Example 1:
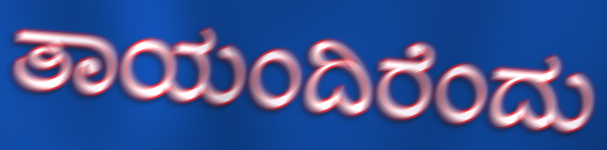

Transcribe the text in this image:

ತಾಯಂದಿರೆಂದು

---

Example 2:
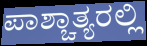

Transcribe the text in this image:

ಪಾಶ್ಚಾತ್ಯರಲ್ಲಿ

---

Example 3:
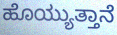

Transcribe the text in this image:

ಹೊಯ್ಯುತ್ತಾನೆ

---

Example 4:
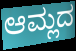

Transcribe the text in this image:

ಆಮ್ಲದ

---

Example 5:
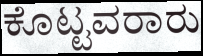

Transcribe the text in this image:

ಕೊಟ್ಟವರಾರು